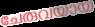
ചേരുവയായ